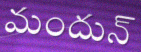
మందున్